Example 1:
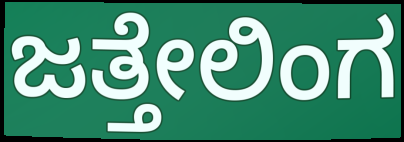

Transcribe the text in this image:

ಜತ್ತೇಲಿಂಗ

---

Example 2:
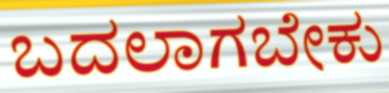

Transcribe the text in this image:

ಬದಲಾಗಬೇಕು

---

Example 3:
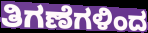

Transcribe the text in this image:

ತಿಗಣೆಗಳಿಂದ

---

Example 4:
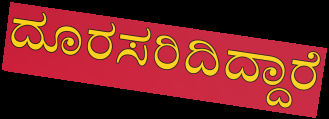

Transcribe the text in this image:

ದೂರಸರಿದಿದ್ದಾರೆ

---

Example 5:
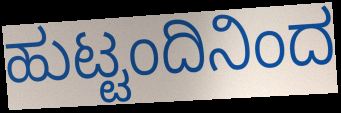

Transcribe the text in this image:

ಹುಟ್ಟಂದಿನಿಂದ